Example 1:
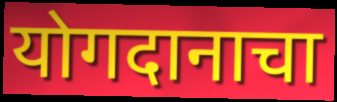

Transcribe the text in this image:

योगदानाचा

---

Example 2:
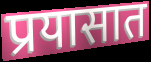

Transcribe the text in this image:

प्रयासात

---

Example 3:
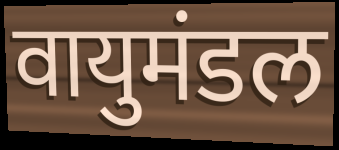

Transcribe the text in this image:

वायुमंडल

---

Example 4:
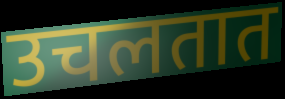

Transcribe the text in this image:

उचलतात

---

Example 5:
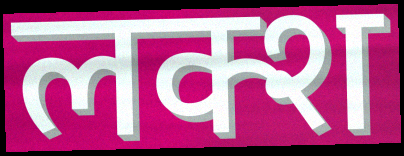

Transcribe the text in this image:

लक्श